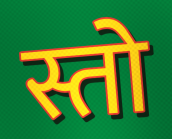
स्तो